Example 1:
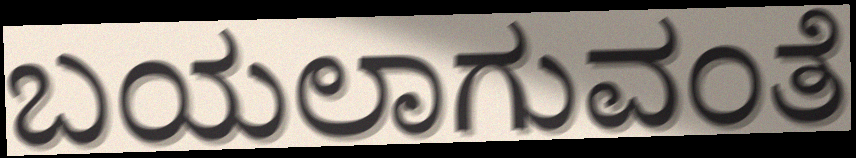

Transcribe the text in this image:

ಬಯಲಾಗುವಂತೆ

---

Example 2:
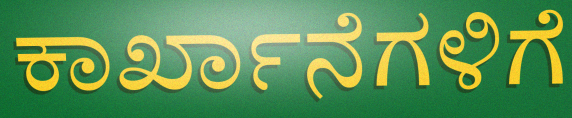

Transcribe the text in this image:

ಕಾರ್ಖಾನೆಗಳಿಗೆ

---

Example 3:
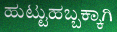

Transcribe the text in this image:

ಹುಟ್ಟುಹಬ್ಬಕ್ಕಾಗಿ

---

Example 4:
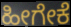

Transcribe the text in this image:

ಹೀಗೇಕೆ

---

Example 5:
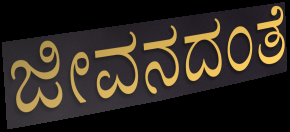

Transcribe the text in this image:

ಜೀವನದಂತೆ